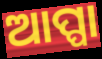
ଆପ୍ପା